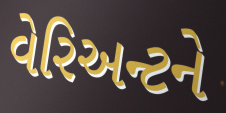
વેરિઅન્ટને